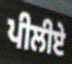
ਪੀਲੀਏ